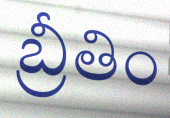
బ్రీతిం